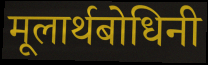
मूलार्थबोधिनी